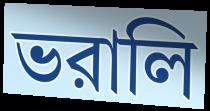
ভরালি